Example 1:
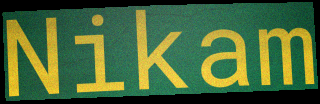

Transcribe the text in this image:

Nikam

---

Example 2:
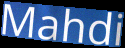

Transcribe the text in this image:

Mahdi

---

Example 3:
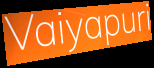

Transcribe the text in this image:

Vaiyapuri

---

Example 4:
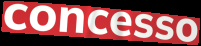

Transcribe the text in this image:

concesso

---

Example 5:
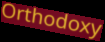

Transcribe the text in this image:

Orthodoxy